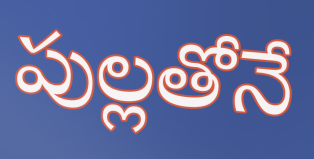
పుల్లతోనే